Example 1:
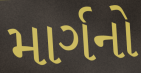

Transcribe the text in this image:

માર્ગનો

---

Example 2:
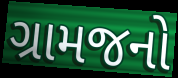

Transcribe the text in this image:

ગ્રામજનો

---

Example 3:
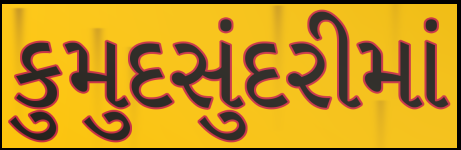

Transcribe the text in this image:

કુમુદસુંદરીમાં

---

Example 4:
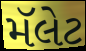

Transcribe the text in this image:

મૅલેટ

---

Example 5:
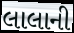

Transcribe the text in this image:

લાલાની